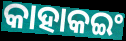
କାହାକଇଂ